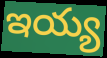
ఇయ్య